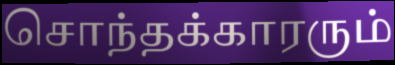
சொந்தக்காரரும்